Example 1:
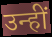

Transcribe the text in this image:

उन्हीं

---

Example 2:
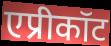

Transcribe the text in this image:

एप्रीकॉट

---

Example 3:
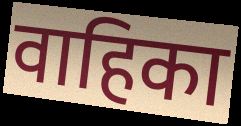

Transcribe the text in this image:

वाहिका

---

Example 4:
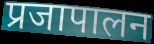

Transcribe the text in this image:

प्रजापालन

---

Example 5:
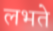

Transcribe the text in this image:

लभते